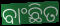
ବାଂଛିତ